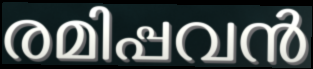
രമിപ്പവൻ